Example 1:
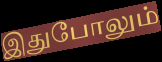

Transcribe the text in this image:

இதுபோலும்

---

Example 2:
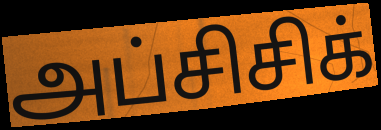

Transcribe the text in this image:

அப்சிசிக்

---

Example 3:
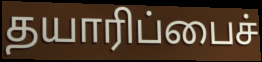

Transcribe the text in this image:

தயாரிப்பைச்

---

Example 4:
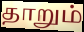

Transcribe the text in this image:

தாறும்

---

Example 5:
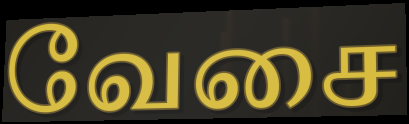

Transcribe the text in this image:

வேசை